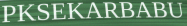
PKSEKARBABU